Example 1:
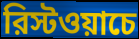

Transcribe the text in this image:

রিস্টওয়াচে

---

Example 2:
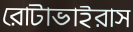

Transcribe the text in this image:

রোটাভাইরাস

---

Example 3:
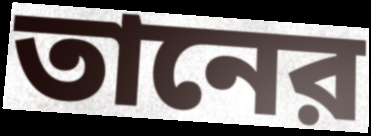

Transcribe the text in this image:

তানের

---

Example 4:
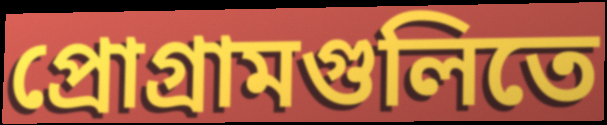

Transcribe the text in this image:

প্রোগ্রামগুলিতে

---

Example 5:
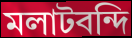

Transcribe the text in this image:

মলাটবন্দি